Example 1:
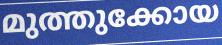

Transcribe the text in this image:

മുത്തുക്കോയ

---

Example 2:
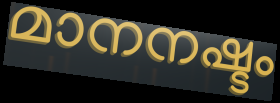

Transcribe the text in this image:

മാനനഷ്ടം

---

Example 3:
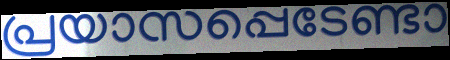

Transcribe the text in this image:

പ്രയാസപ്പെടേണ്ടാ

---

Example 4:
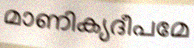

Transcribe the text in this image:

മാണിക്യദീപമേ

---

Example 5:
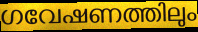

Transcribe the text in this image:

ഗവേഷണത്തിലും